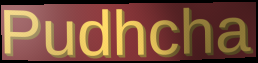
Pudhcha